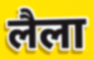
लैला